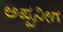
ಅಪ್ಪನೀಗ